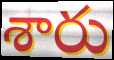
శారు